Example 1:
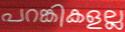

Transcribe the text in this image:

പറങ്കികളല്ല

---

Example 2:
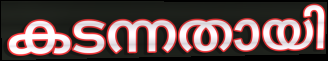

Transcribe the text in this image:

കടന്നതായി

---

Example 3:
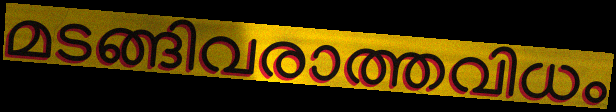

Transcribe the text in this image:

മടങ്ങിവരാത്തവിധം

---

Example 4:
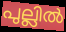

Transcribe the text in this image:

പുല്ലിൽ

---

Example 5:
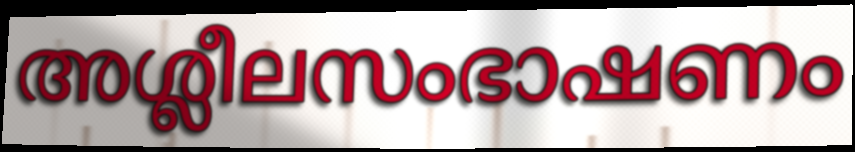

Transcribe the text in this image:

അശ്ലീലസംഭാഷണം